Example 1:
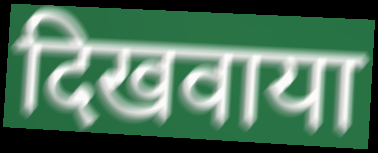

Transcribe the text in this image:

दिखवाया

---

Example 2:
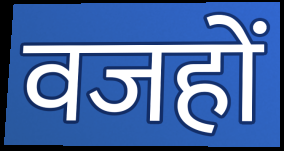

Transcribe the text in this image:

वजहों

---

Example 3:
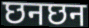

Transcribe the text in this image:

छनछन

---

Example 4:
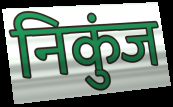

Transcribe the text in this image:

निकुंज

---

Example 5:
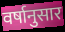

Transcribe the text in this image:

वर्षानुसार